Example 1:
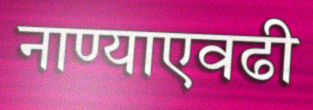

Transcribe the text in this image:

नाण्याएवढी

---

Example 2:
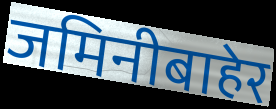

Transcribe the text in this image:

जमिनीबाहेर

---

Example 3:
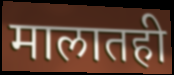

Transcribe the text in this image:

मालातही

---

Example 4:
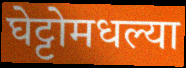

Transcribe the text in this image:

घेट्टोमधल्या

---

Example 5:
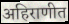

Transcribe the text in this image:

अहिराणीत